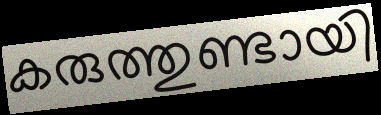
കരുത്തുണ്ടായി